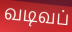
வடிவப்